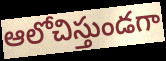
ఆలోచిస్తుండగా